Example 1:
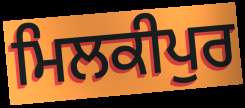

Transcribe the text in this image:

ਮਿਲਕੀਪੁਰ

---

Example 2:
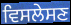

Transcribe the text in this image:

ਵਿਸਲੇਸਣ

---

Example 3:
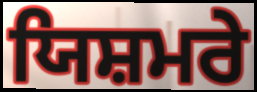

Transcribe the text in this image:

ਯਿਸ਼ਮਰੇ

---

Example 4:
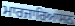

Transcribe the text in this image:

ਮਾਰਜਾਰਿਆਸਨ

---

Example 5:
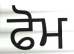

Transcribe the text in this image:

ਫੋਮ